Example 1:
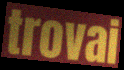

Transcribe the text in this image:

trovai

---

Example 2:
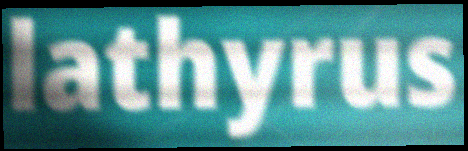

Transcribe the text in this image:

lathyrus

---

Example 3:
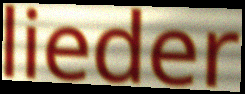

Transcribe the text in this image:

lieder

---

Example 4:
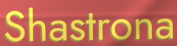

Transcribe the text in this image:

Shastrona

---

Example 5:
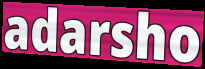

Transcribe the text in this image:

adarsho